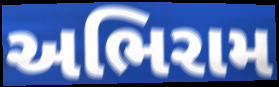
અભિરામ